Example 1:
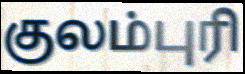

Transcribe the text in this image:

குலம்புரி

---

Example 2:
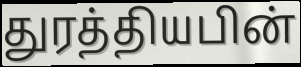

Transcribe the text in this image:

துரத்தியபின்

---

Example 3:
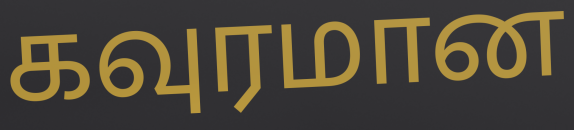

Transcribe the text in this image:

கவுரமான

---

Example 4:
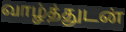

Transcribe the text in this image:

வாழ்த்துடன்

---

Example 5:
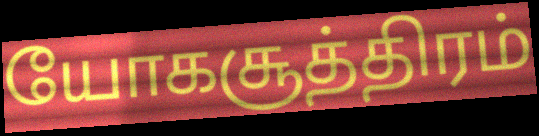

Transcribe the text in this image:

யோகசூத்திரம்